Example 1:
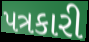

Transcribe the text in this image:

પત્રકારી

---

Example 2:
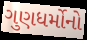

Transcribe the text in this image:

ગુણધર્મોનો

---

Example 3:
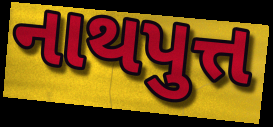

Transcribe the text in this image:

નાથપુત્ત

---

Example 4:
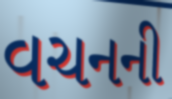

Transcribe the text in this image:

વચનની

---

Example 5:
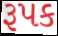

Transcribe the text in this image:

રૂપક